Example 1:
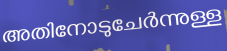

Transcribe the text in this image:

അതിനോടുചേർന്നുള്ള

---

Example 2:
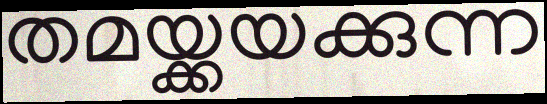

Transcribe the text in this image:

തമയ്ക്കയക്കുന്ന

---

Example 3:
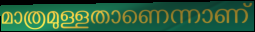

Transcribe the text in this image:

മാത്രമുള്ളതാണെന്നാണ്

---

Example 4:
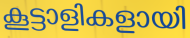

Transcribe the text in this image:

കൂട്ടാളികളായി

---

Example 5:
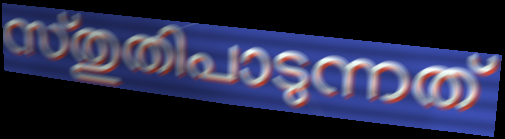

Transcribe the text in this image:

സ്തുതിപാടുന്നത്